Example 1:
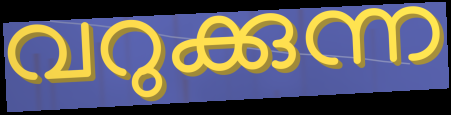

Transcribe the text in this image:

വറുക്കുന്ന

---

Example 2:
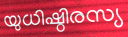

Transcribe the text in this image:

യുധിഷ്ഠിരസ്യ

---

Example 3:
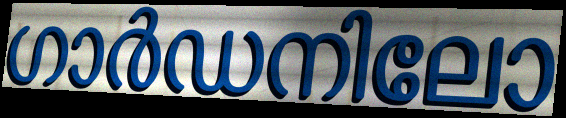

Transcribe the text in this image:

ഗാർഡനിലോ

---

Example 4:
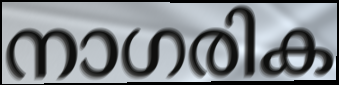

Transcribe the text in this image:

നാഗരിക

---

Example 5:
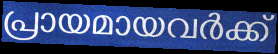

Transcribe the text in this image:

പ്രായമായവർക്ക്